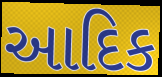
આદિક